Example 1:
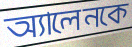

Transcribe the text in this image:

অ্যালেনকে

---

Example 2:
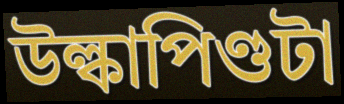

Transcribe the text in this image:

উল্কাপিণ্ডটা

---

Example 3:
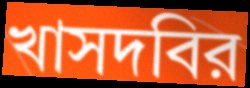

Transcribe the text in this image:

খাসদবির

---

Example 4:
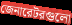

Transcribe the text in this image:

জেনারেটরগুলো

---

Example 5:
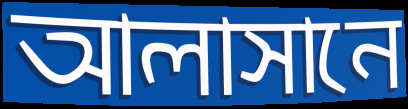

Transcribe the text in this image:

আলাসানে